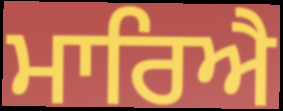
ਮਾਰਿਐ